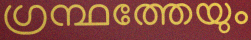
ഗ്രന്ഥത്തേയും